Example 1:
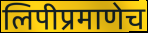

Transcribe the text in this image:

लिपीप्रमाणेच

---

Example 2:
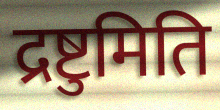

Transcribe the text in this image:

द्रष्टुमिति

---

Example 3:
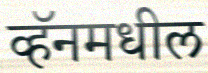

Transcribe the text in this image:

व्हॅनमधील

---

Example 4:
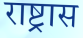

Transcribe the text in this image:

राष्ट्रास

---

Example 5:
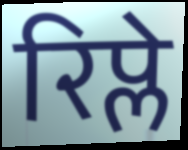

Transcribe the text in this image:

रिप्ले